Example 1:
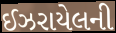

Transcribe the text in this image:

ઈઝરાયેલની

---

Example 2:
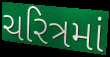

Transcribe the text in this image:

ચરિત્રમાં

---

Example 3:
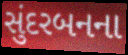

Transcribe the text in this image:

સુંદરબનના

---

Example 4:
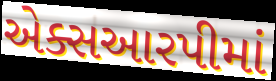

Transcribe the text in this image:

એક્સઆરપીમાં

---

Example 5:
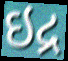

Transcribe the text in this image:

ઇદ્ર